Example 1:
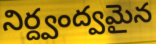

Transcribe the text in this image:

నిర్ద్వంద్వమైన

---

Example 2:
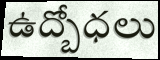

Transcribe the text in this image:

ఉద్బోధలు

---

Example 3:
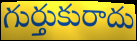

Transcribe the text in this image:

గుర్తుకురాదు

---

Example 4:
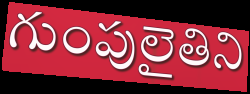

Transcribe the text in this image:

గుంపులైతిని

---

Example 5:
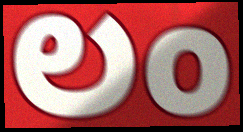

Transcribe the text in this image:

లం